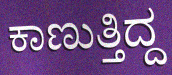
ಕಾಣುತ್ತಿದ್ದ